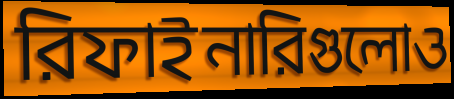
রিফাইনারিগুলোও